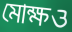
মোক্ষও